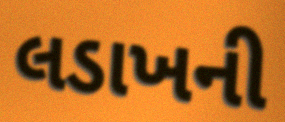
લડાખની